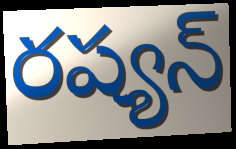
రష్యన్